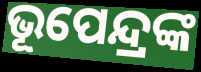
ଭୂପେନ୍ଦ୍ରଙ୍କ